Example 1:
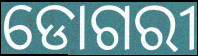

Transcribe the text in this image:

ଡୋଗରୀ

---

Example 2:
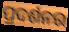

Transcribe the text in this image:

ପ୍ରଦର୍ଶନର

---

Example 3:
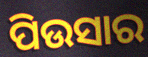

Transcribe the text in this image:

ପିଉସାର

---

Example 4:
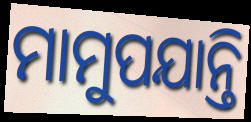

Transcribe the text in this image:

ମାମୁପଯାନ୍ତି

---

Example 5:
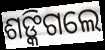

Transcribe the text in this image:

ଶଙ୍କିଗଲେ